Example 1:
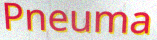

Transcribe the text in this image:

Pneuma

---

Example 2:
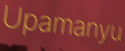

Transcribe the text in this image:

Upamanyu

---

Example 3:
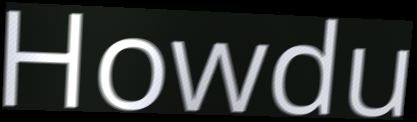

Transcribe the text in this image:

Howdu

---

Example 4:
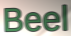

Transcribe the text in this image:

Beel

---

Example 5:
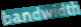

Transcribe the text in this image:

bandwidth